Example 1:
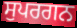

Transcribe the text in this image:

ਸੁਪਰਗਨ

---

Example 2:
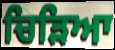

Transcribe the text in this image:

ਚਿੜਿਆ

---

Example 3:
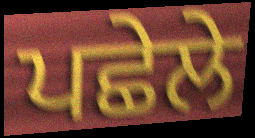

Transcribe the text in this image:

ਪਛੇਲੇ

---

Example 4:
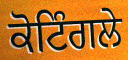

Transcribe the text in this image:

ਕੋਟਿੰਗਲੇ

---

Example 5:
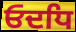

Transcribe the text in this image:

ਓਦਧਿ